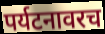
पर्यटनावरच